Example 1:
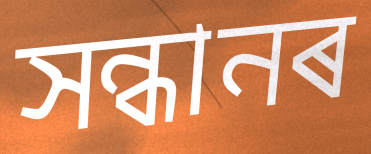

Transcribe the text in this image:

সন্ধানৰ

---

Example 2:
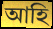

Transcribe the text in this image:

আহি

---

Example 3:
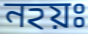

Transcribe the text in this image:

নহয়ঃ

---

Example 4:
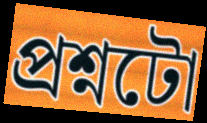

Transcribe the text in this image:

প্ৰশ্নটো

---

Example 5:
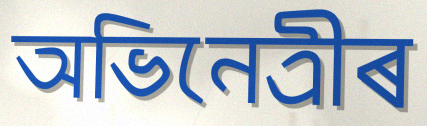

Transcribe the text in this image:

অভিনেত্ৰীৰ